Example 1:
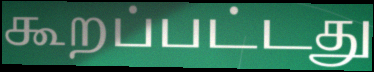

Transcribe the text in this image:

கூறப்பட்டது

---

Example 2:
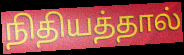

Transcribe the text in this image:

நிதியத்தால்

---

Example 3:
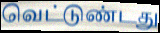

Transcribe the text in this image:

வெட்டுண்டது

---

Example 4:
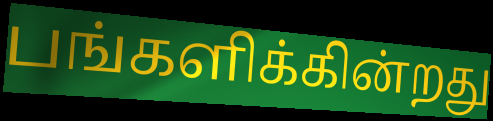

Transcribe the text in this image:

பங்களிக்கின்றது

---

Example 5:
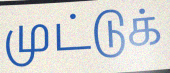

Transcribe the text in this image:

முட்டுக்